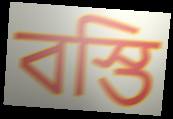
বস্তি